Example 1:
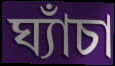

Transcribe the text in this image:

ঘ্যাঁচা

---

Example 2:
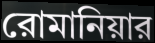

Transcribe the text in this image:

রোমানিয়ার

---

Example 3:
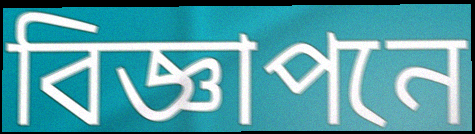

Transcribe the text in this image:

বিজ্ঞাপনে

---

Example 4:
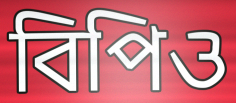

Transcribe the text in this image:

বিপিও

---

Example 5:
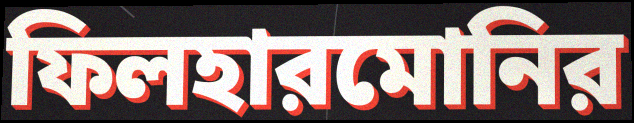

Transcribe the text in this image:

ফিলহারমোনির